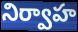
నిర్వాహ